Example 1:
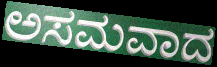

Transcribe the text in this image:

ಅಸಮವಾದ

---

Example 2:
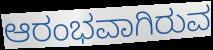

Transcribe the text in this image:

ಆರಂಭವಾಗಿರುವ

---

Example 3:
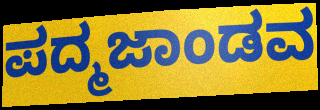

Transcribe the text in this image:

ಪದ್ಮಜಾಂಡವ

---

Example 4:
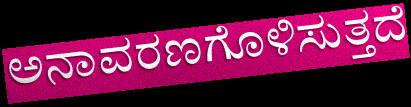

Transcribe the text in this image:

ಅನಾವರಣಗೊಳಿಸುತ್ತದೆ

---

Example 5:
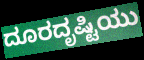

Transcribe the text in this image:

ದೂರದೃಷ್ಟಿಯು